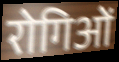
रोगिओं